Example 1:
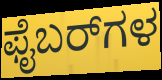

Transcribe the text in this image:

ಫೈಬರ್‌ಗಳ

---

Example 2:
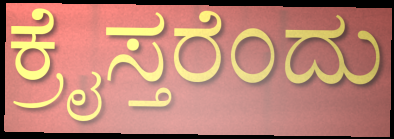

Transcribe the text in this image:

ಕ್ರೈಸ್ತರೆಂದು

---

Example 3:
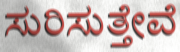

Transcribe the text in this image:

ಸುರಿಸುತ್ತೇವೆ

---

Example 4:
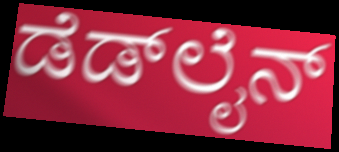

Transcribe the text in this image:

ಡೆಡ್‍ಲೈನ್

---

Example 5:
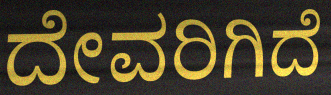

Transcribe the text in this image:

ದೇವರಿಗಿದೆ